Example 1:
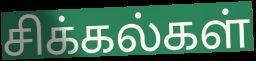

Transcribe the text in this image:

சிக்கல்கள்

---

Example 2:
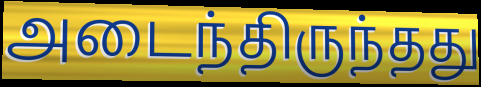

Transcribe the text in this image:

அடைந்திருந்தது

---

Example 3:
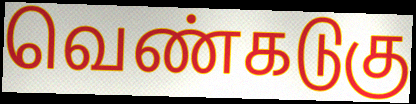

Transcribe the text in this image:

வெண்கடுகு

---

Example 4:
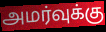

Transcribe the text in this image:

அமர்வுக்கு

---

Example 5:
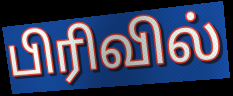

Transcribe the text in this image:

பிரிவில்